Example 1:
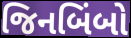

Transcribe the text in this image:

જિનબિંબો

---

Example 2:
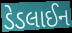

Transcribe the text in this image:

ડેડલાઈન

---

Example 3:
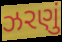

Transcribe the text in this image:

ઝરણું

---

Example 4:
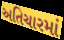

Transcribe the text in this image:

અતિચારમાં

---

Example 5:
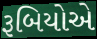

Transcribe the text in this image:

રૂબિયોએ